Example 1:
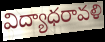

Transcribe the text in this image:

విద్యాధరావళి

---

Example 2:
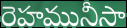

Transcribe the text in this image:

రెహమునీసా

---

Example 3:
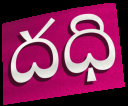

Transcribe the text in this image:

దధి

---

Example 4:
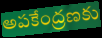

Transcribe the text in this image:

అపకేంద్రణకు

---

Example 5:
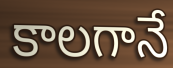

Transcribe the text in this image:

కాలగానే